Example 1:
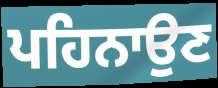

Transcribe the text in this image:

ਪਹਿਨਾਉਣ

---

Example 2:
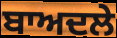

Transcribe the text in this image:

ਬਾਅਦਲੇ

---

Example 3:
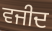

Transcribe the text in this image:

ਵਜੀਦ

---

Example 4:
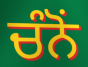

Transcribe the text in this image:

ਚੰਨੋਂ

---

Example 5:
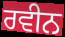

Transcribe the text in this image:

ਰਵੀਨ